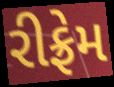
રીફ્રેમ